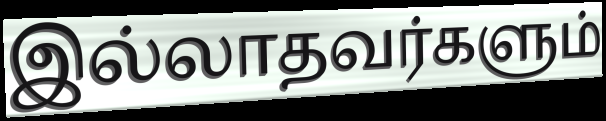
இல்லாதவர்களும்